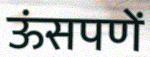
ऊंसपणें